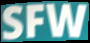
SFW